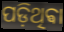
ପଡ଼ିଥିଵା